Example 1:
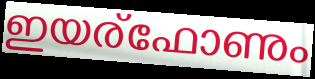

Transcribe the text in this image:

ഇയര്ഫോണും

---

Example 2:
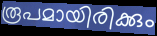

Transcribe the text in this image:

രൂപമായിരിക്കും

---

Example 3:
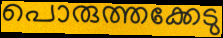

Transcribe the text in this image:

പൊരുത്തക്കേടു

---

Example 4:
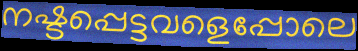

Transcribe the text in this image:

നഷ്ടപ്പെട്ടവളെപ്പോലെ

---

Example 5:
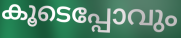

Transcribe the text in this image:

കൂടെപ്പോവും